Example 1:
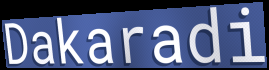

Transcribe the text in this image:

Dakaradi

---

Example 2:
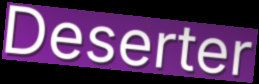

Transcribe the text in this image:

Deserter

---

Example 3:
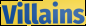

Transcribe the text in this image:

Villains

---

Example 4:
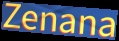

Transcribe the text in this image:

Zenana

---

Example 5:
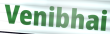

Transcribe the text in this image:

Venibhai